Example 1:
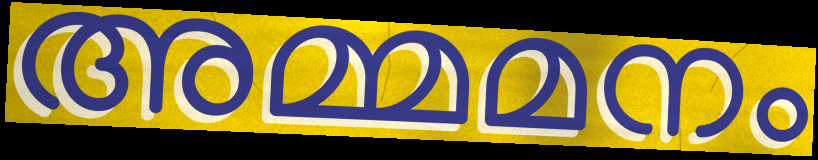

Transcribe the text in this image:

അമ്മമനം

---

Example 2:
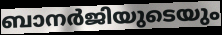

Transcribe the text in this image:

ബാനർജിയുടെയും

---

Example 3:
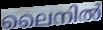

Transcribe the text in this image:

ലൈനിൽ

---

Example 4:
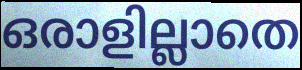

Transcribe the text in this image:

ഒരാളില്ലാതെ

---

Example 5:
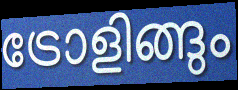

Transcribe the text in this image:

ട്രോളിങ്ങും